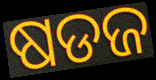
ଷଡଜ